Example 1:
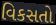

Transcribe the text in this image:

વિકસતો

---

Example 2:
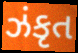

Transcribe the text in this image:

ઝંકૃત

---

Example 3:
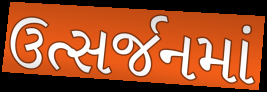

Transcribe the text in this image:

ઉત્સર્જનમાં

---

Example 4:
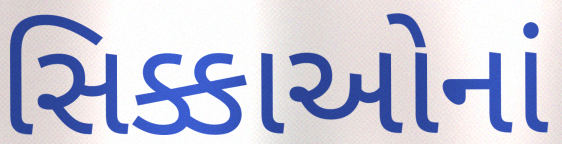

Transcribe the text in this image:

સિક્કાઓનાં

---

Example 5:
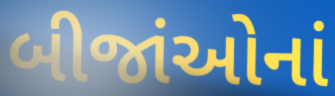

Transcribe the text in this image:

બીજાંઓનાં